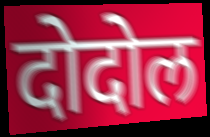
दोदोल